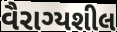
વૈરાગ્યશીલ